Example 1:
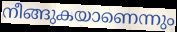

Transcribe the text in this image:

നീങ്ങുകയാണെന്നും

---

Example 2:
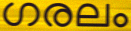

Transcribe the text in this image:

ഗരലം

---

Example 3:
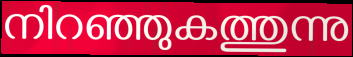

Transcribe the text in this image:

നിറഞ്ഞുകത്തുന്നു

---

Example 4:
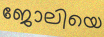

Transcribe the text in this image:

ജോലിയെ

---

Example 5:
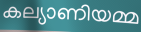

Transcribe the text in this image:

കല്യാണിയമ്മ